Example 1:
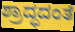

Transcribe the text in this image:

ಶ್ರಾದ್ಧದಂತೆ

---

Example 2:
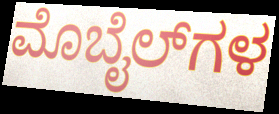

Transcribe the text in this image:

ಮೊಬೈಲ್‌ಗಳ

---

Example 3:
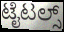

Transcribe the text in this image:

ಟೈಟಲ್ಸ್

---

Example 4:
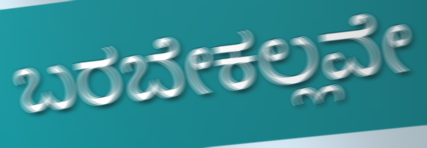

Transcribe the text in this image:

ಬರಬೇಕಲ್ಲವೇ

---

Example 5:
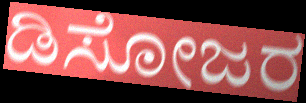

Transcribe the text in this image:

ಡಿಸೋಜರ